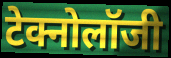
टेक्नोलॉजी